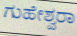
ಗುಹೇಶ್ವರಾ